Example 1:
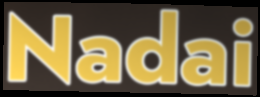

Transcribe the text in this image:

Nadai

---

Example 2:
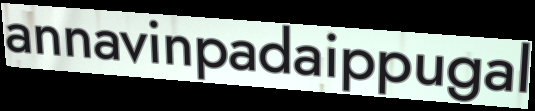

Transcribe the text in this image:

annavinpadaippugal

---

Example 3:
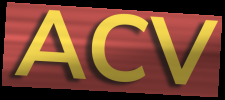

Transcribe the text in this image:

ACV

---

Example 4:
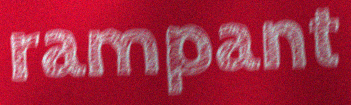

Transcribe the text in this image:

rampant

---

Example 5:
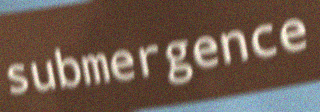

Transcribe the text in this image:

submergence